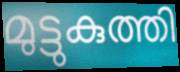
മുട്ടുകുത്തി